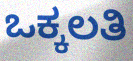
ಒಕ್ಕಲತಿ